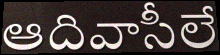
ఆదివాసీలే